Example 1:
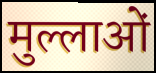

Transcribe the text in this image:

मुल्लाओं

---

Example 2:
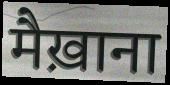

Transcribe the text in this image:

मैख़ाना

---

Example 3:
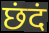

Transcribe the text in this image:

छंदं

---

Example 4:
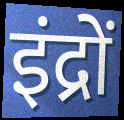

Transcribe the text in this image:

इंद्रों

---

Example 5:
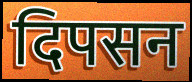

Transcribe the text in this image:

दिपसन